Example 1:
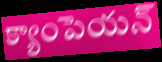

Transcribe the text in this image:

క్యాంపెయన్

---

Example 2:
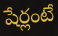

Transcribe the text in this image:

షేర్లంటే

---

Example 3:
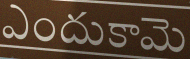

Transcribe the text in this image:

ఎందుకామె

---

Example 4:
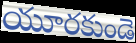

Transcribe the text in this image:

యూరకుండె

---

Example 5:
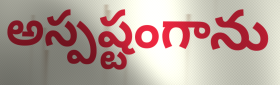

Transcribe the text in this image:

అస్పష్టంగాను